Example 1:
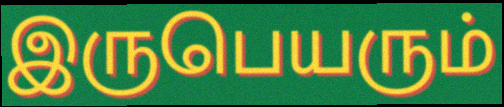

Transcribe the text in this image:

இருபெயரும்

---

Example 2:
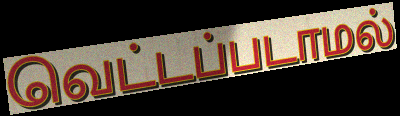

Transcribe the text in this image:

வெட்டப்படாமல்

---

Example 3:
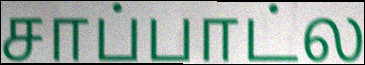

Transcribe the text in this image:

சாப்பாட்ல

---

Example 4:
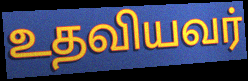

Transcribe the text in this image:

உதவியவர்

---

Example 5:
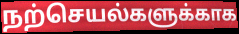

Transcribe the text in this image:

நற்செயல்களுக்காக